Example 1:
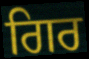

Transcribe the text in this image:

ਗਿਰ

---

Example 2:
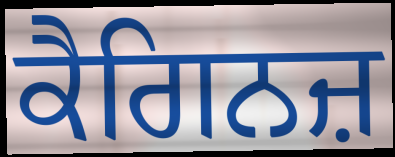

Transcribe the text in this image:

ਕੈਗਿਨਜ਼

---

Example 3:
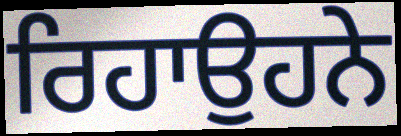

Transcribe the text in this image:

ਰਿਹਾਉਹਨੇ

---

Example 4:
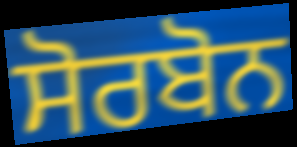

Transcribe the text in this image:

ਸੋਰਬੋਨ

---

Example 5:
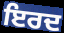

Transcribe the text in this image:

ਇਰਦ